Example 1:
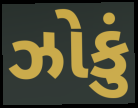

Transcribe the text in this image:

ઝોકું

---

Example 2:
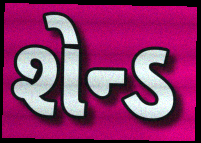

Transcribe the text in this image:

શેન્ડ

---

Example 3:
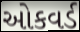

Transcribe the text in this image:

ઓકવર્ડ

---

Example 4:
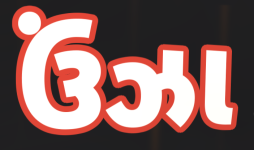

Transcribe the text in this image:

ઉંઝા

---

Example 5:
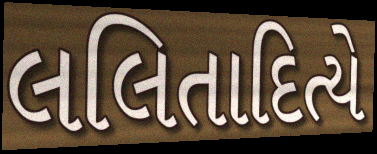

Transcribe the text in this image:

લલિતાદિત્યે